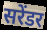
सरेंडर